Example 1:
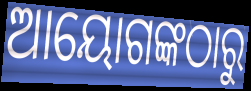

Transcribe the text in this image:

ଆୟୋଗଙ୍କଠାରୁ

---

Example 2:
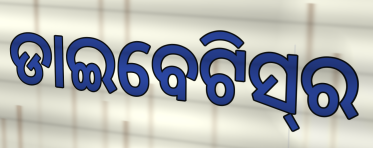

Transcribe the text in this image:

ଡାଇବେଟିସ୍‌ର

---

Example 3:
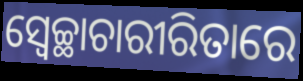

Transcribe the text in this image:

ସ୍ଵେଚ୍ଛାଚାରୀରିତାରେ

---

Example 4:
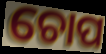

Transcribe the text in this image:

ଚୋପ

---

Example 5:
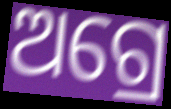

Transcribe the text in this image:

ଅଗ୍ରେ